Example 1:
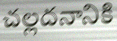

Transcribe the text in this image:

చల్లదనానికి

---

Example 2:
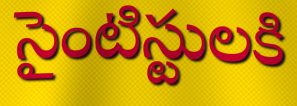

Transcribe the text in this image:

సైంటిస్టులకి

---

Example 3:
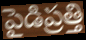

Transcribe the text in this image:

పైడిప్రత్తి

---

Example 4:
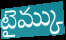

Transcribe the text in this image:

టైమ్కు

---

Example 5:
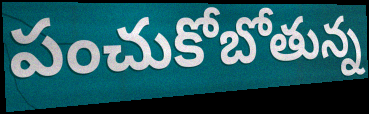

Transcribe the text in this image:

పంచుకోబోతున్న